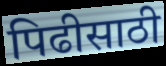
पिढीसाठी